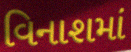
વિનાશમાં